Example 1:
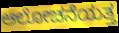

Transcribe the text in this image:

ಆಲೋಚನೆಯತ್ತ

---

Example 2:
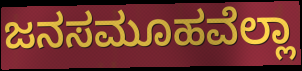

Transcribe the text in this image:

ಜನಸಮೂಹವೆಲ್ಲಾ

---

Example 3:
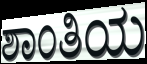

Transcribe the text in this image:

ಶಾಂತಿಯ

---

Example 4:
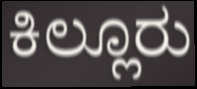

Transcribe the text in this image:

ಕಿಲ್ಲೂರು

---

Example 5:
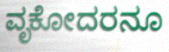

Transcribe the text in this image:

ವೃಕೋದರನೂ